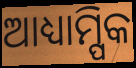
ଆଧ୍ୟାମ୍ପିକ